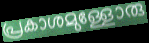
പ്രകാശമുള്ളോരു